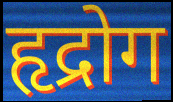
हृद्रोग